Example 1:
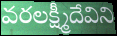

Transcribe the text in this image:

వరలక్ష్మీదేవిని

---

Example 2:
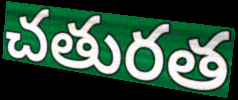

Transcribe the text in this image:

చతురత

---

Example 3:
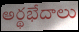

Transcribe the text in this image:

అర్థభేదాలు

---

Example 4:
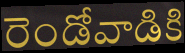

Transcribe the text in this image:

రెండోవాడికి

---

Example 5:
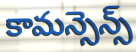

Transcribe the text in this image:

కామన్సెన్స్